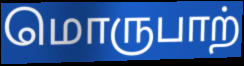
மொருபாற்